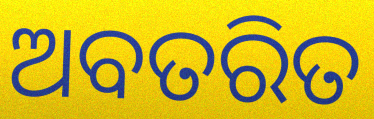
ଅବତରିତ